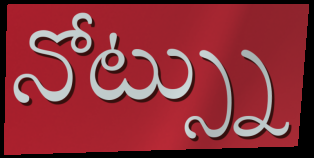
నోట్స్ను